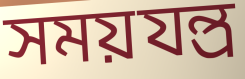
সময়যন্ত্র